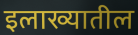
इलाख्यातील